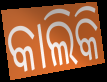
କାଲିକି